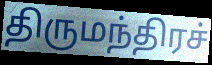
திருமந்திரச்